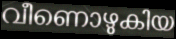
വീണൊഴുകിയ